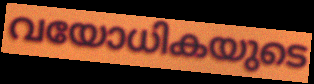
വയോധികയുടെ